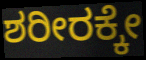
ಶರೀರಕ್ಕೇ